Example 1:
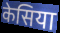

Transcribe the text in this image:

केसिया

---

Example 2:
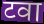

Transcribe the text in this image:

टवा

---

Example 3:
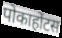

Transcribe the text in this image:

पोकाहोंटस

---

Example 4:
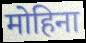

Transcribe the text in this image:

मोहिना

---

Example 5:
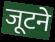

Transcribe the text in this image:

जूटने